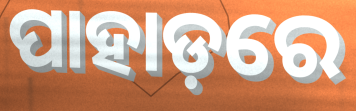
ପାହାଡ଼ରେ